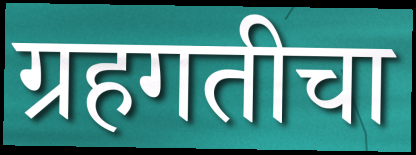
ग्रहगतीचा